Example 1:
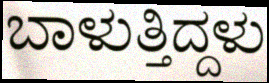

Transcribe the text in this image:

ಬಾಳುತ್ತಿದ್ದಳು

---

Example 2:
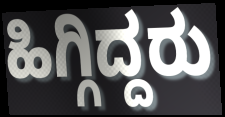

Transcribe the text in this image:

ಹಿಗ್ಗಿದ್ದರು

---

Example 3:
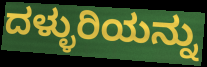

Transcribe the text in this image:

ದಳ್ಳುರಿಯನ್ನು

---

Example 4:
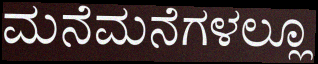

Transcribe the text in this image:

ಮನೆಮನೆಗಳಲ್ಲೂ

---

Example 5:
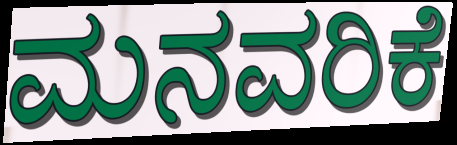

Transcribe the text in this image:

ಮನವರಿಕೆ